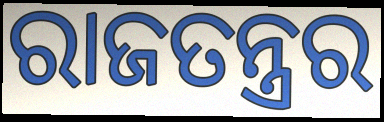
ରାଜତନ୍ତ୍ରର